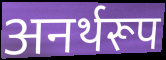
अनर्थरूप